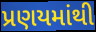
પ્રણયમાંથી